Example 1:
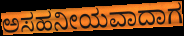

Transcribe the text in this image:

ಅಸಹನೀಯವಾದಾಗ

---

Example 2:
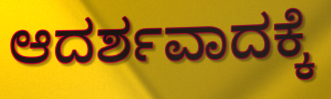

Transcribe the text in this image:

ಆದರ್ಶವಾದಕ್ಕೆ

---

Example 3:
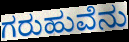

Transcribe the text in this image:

ಗರುಹುವೆನು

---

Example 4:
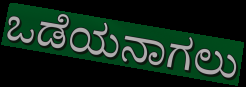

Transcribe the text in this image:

ಒಡೆಯನಾಗಲು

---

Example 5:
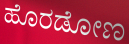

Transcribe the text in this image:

ಹೊರಡೋಣ